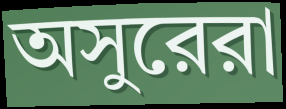
অসুরেরা